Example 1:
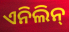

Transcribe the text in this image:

ଏନିଲିନ୍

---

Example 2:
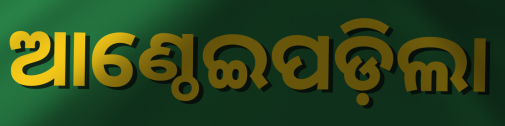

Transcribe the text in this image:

ଆଣ୍ଠେଇପଡ଼ିଲା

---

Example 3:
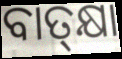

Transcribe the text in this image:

ବାତ୍କ୍ଷା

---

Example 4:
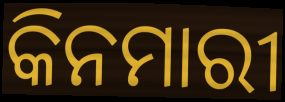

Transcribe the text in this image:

କିନମାରୀ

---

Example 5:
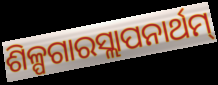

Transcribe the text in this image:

ଶିଳ୍ପଗାରସ୍ଲାପନାର୍ଥମ୍